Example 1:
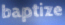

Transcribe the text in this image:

baptize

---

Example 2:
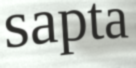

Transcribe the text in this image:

sapta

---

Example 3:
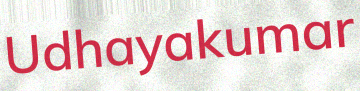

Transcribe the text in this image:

Udhayakumar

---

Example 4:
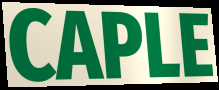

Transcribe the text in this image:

CAPLE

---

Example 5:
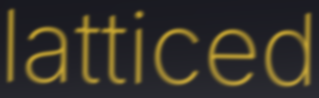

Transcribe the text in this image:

latticed